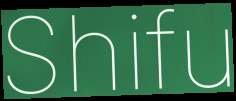
Shifu